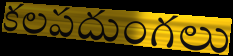
కలపదుంగలు